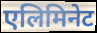
एलिमिनेट